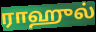
ராஹுல்